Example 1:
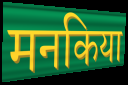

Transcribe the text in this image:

मनकिया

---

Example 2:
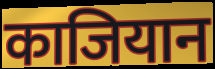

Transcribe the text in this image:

काजियान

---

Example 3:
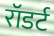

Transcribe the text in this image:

रॉडर्ट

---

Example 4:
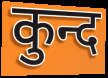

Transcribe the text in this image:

कुन्द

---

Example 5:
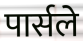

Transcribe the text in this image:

पार्सले